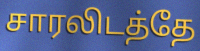
சாரலிடத்தே